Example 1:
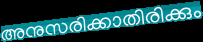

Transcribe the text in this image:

അനുസരിക്കാതിരിക്കും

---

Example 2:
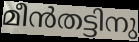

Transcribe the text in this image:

മീൻതട്ടിനു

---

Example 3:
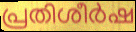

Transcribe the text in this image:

പ്രതിശീർഷ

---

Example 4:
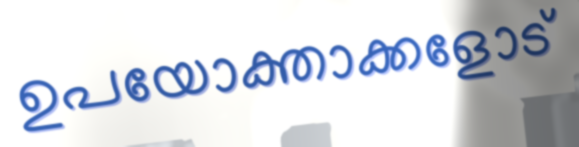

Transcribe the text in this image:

ഉപയോക്താക്കളോട്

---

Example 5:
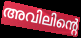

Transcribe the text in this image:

അവിലിന്റെ